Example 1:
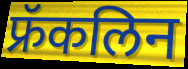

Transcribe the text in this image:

फ्रॅकलिन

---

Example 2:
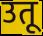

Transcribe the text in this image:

उतू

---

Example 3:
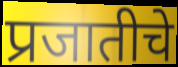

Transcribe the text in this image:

प्रजातीचे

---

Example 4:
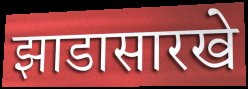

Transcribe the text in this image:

झाडासारखे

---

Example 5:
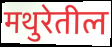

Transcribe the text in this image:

मथुरेतील